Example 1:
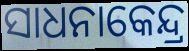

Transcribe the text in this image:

ସାଧନାକେନ୍ଦ୍ର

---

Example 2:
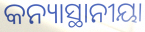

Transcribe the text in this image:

କନ୍ୟାସ୍ଥାନୀୟା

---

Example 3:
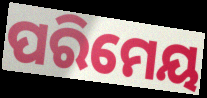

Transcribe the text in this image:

ପରିମେୟ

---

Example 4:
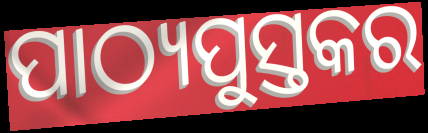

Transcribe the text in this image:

ପାଠ୍ୟପୁସ୍ତକର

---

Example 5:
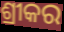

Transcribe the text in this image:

ଶ୍ରୀକର